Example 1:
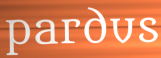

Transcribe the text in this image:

pardus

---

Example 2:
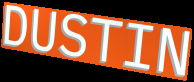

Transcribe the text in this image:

DUSTIN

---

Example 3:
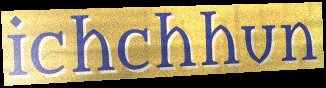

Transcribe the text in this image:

ichchhun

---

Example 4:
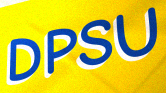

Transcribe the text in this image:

DPSU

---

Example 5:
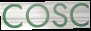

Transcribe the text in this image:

COSC